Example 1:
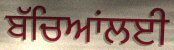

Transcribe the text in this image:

ਬੱਚਿਆਂਲਈ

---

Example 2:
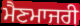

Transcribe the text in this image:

ਮੈਣਮਾਜਰੀ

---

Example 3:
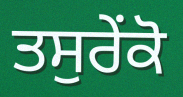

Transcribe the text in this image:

ਤਸੁਰੇਂਕੋ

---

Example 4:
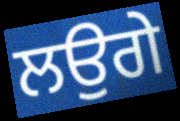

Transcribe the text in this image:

ਲਉਗੇ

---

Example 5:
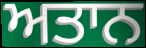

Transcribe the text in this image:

ਅਤਾਨ